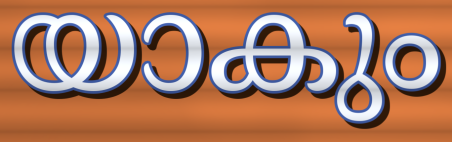
യാകും